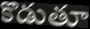
కొడుతూ